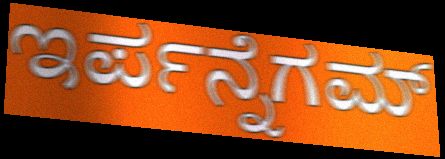
ಇರ್ಪನ್ನೆಗಮ್